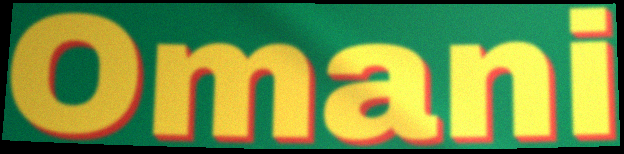
Omani